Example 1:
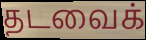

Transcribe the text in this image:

தடவைக்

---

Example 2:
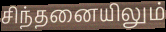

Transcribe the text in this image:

சிந்தனையிலும்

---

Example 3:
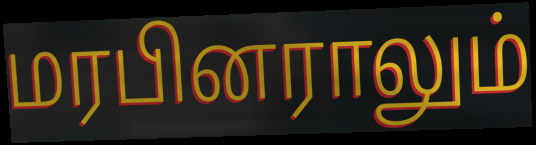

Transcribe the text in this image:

மரபினராலும்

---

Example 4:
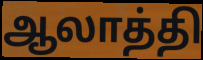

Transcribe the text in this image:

ஆலாத்தி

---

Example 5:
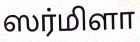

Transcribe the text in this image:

ஸர்மிளா